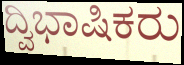
ದ್ವಿಭಾಷಿಕರು